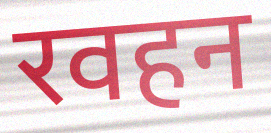
रवहन